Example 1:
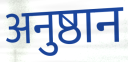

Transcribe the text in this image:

अनुष्ठान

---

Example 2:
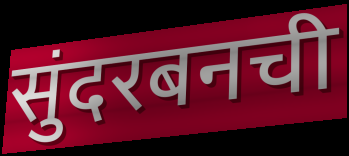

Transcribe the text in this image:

सुंदरबनची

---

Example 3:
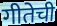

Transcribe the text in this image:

गीतेची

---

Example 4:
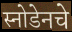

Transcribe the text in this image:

स्नोडेनचे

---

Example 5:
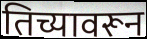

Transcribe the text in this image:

तिच्यावरून